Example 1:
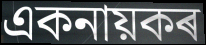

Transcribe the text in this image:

একনায়কৰ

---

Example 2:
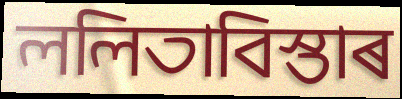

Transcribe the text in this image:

ললিতাবিস্তাৰ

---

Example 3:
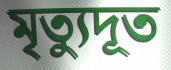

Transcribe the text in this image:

মৃত্যুদূত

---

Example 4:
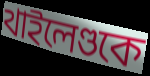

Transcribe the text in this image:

থাইলেণ্ডকে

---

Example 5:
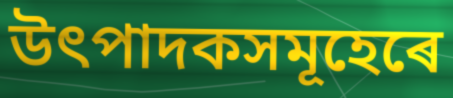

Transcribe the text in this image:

উৎপাদকসমূহেৰে